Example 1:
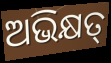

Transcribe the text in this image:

ଅଭିକ୍ଷତ୍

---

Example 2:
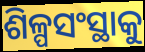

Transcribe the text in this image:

ଶିଳ୍ପସଂସ୍ଥାକୁ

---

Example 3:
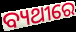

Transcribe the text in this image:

ବ୍ୟଥୀରେ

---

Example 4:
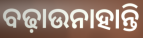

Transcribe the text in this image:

ବଢ଼ାଉନାହାନ୍ତି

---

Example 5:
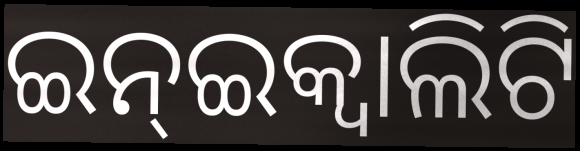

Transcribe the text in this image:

ଇନ୍ଇକ୍ଵାଲିଟି